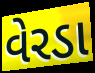
વેરડા